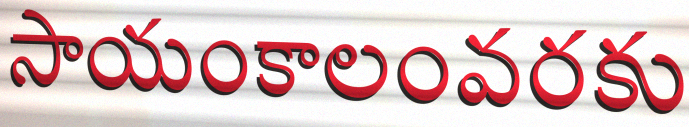
సాయంకాలంవరకు